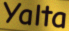
Yalta